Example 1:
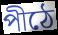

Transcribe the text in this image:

পীঠে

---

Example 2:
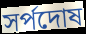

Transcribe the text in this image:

সর্পদোষ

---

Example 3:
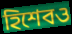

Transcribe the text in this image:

হিশেবও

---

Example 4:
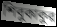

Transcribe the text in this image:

শিবুকাকুর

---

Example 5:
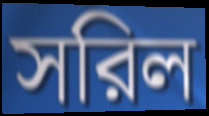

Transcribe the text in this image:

সরিল